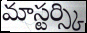
మాస్టర్స్కి